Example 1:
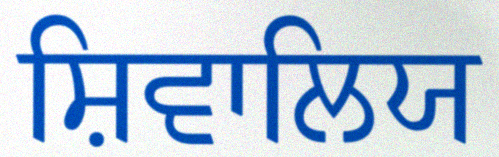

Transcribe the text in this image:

ਸ਼ਿਵਾਲਿਯ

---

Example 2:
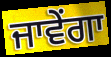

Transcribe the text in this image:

ਜਾਵੇਂਗਾ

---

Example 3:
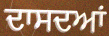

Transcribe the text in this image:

ਦਾਸਦਆਂ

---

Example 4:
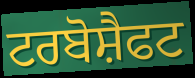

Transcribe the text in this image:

ਟਰਬੋਸ਼ੈਫਟ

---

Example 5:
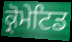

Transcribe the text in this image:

ਕ੍ਰੋਮੇਟਿਡ